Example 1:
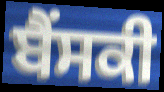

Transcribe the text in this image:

ਬੈਂਸਕੀ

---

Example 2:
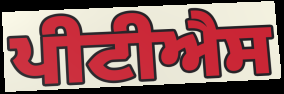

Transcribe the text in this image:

ਪੀਟੀਐਸ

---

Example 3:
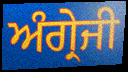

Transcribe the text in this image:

ਅੰਗ੍ਰੇਜੀ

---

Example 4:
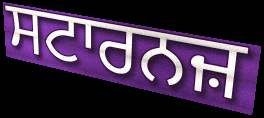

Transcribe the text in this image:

ਸਟਾਰਨਜ਼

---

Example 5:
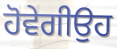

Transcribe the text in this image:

ਹੋਵੇਗੀਉਹ